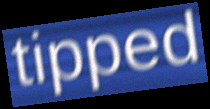
tipped